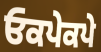
ਓਕਪੇਕਪੇ